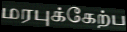
மரபுக்கேற்ப